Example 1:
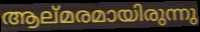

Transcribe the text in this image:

ആല്മരമായിരുന്നു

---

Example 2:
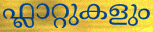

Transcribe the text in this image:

ഫ്ലാറ്റുകളും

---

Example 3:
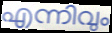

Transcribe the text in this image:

എന്നിവും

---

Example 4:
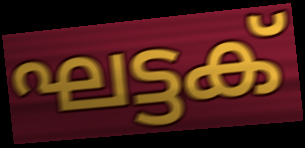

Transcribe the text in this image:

ഘട്ടക്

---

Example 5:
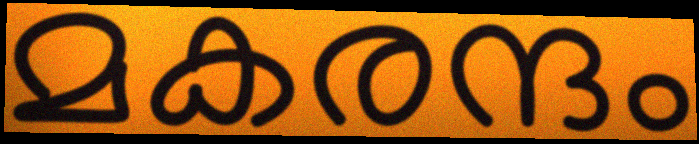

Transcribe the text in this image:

മകരന്ദം